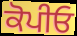
ਕੋਪੀਓ